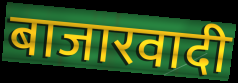
बाजारवादी